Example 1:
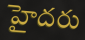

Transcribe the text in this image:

హైదరు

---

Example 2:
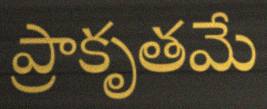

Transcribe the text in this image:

ప్రాకృతమే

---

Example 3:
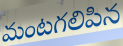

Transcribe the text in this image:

మంటగలిపిన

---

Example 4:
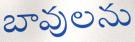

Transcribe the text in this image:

బావులను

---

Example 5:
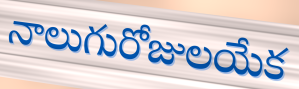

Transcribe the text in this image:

నాలుగురోజులయేక